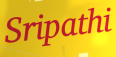
Sripathi